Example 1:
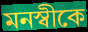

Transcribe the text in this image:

মনস্বীকে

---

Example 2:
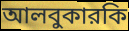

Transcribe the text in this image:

আলবুকারকি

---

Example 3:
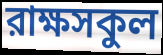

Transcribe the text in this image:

রাক্ষসকুল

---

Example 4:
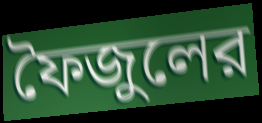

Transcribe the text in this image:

ফৈজুলের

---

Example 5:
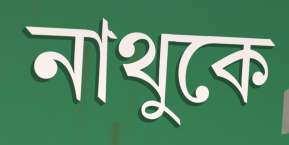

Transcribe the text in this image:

নাথুকে